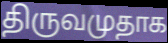
திருவமுதாக